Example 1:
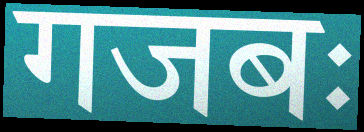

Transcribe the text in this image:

गजबः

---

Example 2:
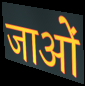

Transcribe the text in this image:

जाओं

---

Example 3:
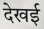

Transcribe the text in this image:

देखई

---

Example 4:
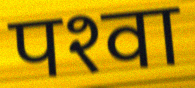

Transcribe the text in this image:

पश्वा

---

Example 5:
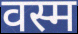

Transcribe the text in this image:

वस्म